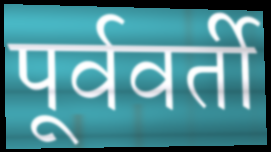
पूर्ववर्ती